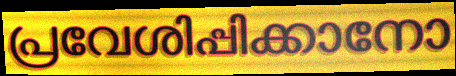
പ്രവേശിപ്പിക്കാനോ